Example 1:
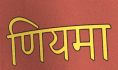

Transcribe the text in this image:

णियमा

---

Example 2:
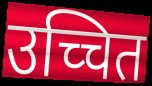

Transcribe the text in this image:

उच्चित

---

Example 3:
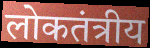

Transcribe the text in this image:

लोकतंत्रीय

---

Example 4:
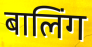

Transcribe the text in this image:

बालिंग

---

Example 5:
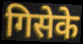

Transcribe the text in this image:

गिसेके